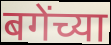
बगेंच्या